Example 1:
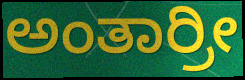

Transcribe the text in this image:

ಅಂತಾರ್ರೀ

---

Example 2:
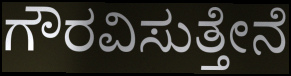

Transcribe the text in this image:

ಗೌರವಿಸುತ್ತೇನೆ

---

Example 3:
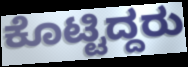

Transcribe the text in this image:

ಕೊಟ್ಟಿದ್ದರು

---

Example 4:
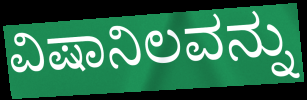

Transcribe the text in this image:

ವಿಷಾನಿಲವನ್ನು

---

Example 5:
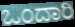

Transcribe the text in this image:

ಒಂದಾರಿ